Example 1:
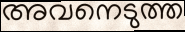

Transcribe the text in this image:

അവനെടുത്ത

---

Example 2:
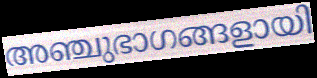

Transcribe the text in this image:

അഞ്ചുഭാഗങ്ങളായി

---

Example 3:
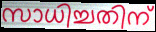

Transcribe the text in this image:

സാധിച്ചതിന്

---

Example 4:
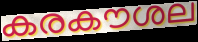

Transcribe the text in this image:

കരകൗശല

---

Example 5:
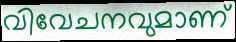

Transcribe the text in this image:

വിവേചനവുമാണ്